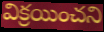
విక్రయించని